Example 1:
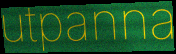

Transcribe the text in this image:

utpanna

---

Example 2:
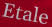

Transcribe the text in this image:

Etale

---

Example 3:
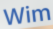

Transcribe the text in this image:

Wim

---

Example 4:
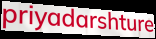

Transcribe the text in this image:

priyadarshture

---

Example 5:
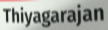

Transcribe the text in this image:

Thiyagarajan